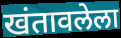
खंतावलेला